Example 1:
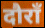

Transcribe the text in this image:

दौराँ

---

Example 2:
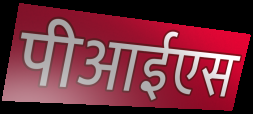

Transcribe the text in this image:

पीआईएस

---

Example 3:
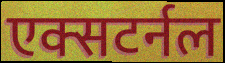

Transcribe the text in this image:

एक्सटर्नल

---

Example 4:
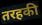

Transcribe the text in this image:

तरहकी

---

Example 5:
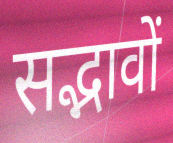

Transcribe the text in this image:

सद्भावों